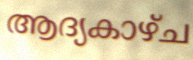
ആദ്യകാഴ്ച